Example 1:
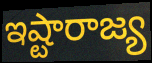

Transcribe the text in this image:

ఇష్టారాజ్య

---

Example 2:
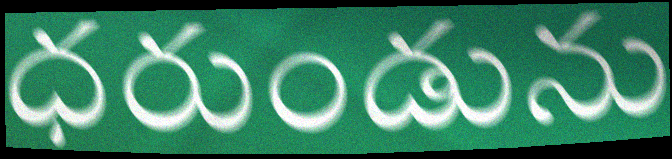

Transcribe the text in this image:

ధరుండును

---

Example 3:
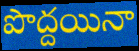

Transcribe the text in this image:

పొద్దయినా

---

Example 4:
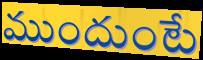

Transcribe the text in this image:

ముందుంటే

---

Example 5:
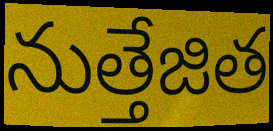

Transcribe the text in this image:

నుత్తేజిత